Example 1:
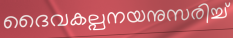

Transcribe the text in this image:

ദൈവകല്പനയനുസരിച്ച്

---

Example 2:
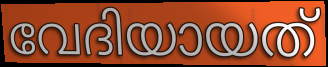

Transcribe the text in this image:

വേദിയായത്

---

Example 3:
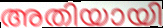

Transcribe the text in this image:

അതിയായി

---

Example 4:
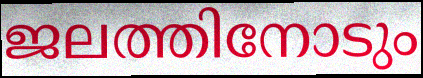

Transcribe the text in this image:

ജലത്തിനോടും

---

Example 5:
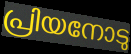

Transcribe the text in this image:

പ്രിയനോടു